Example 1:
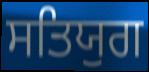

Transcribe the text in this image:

ਸਤਿਯੁਗ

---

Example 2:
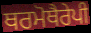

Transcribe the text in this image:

ਥਰਮੋਥੈਰੇਪੀ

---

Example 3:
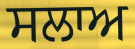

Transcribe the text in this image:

ਸਲਾਅ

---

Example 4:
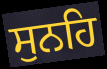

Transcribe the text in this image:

ਸੁਨਹਿ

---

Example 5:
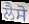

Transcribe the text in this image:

ਲੈਸੋ